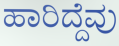
ಹಾರಿದ್ದೆವು